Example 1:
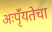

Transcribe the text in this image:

अःपृँयतेचा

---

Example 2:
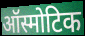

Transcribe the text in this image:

ऑस्मोटिक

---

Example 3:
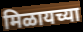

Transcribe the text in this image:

मिळायच्या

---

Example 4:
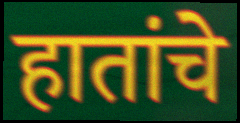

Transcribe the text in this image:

हातांचे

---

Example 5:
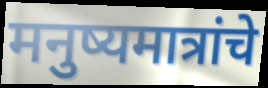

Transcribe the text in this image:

मनुष्यमात्रांचे